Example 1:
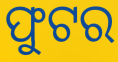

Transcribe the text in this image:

ଫୁଟର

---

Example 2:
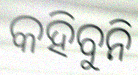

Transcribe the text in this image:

କହିବୁନି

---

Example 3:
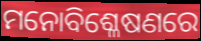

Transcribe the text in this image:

ମନୋବିଶ୍ଳେଷଣରେ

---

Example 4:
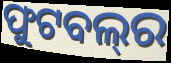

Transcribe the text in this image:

ଫୁଟବଲ୍‍ର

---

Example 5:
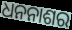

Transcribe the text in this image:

ଧନନାଶର